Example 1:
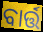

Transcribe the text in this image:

ବାର୍ତ୍ତ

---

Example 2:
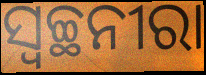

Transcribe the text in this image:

ସ୍ବଚ୍ଛନୀରା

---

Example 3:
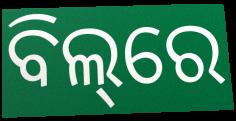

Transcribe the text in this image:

ବିଲ୍‌ରେ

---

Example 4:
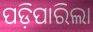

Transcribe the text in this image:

ପଡ଼ିପାରିଲା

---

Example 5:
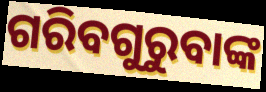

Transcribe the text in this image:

ଗରିବଗୁରୁବାଙ୍କ